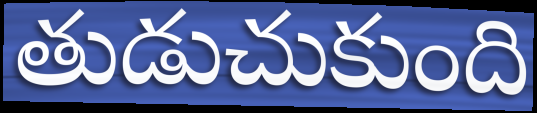
తుడుచుకుంది